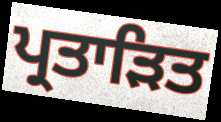
ਪ੍ਰਤਾੜਿਤ